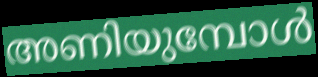
അണിയുമ്പോൾ